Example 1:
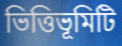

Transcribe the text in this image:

ভিত্তিভূমিটি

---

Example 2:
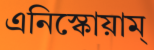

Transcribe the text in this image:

এনিস্কোয়াম্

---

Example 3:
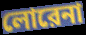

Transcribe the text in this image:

লোরেনা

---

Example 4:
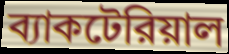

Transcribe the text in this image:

ব্যাকটেরিয়াল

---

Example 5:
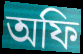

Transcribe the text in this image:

অফি